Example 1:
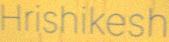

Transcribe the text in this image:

Hrishikesh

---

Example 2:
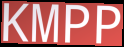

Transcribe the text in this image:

KMPP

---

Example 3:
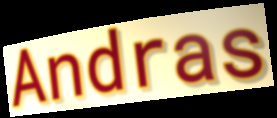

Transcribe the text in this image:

Andras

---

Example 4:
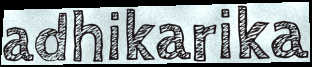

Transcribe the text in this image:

adhikarika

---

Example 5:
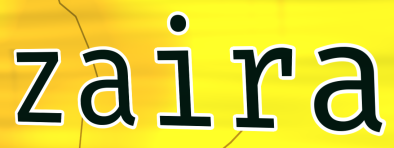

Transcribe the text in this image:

zaira